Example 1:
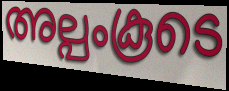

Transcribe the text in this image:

അല്പംകൂടെ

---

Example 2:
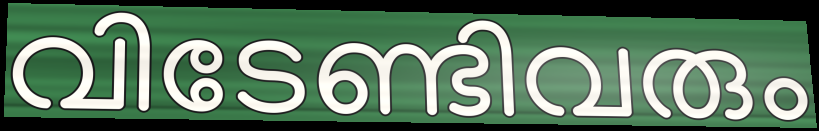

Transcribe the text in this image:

വിടേണ്ടിവരും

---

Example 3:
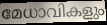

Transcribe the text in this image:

മേധാവികളും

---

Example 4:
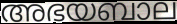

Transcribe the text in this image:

അഭയബാല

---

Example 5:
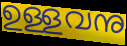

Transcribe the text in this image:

ഉള്ളവനു